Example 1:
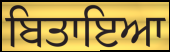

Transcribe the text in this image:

ਬਿਤਾਇਆ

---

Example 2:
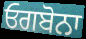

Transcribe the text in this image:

ਓਗਬੋਨਾ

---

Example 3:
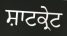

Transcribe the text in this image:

ਸ਼ਾਟਕ੍ਰੇਟ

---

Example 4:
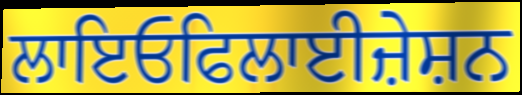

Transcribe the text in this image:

ਲਾਇਓਫਿਲਾਈਜ਼ੇਸ਼ਨ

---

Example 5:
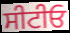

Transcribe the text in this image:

ਸੀਟੀਓ